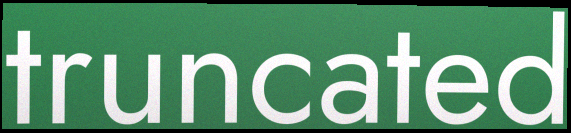
truncated